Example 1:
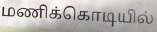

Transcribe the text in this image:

மணிக்கொடியில்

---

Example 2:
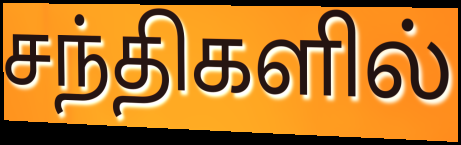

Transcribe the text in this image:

சந்திகளில்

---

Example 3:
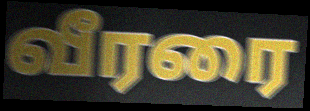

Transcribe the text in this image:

வீரரை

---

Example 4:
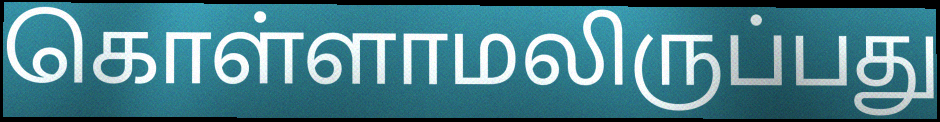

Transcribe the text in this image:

கொள்ளாமலிருப்பது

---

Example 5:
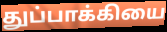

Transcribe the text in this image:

துப்பாக்கியை